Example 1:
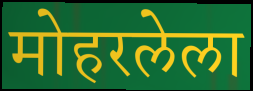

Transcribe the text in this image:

मोहरलेला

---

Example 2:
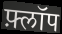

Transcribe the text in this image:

फ़्लॉप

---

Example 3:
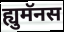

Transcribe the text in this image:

ह्युमॅनस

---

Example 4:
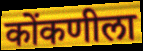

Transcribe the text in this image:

कोंकणीला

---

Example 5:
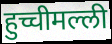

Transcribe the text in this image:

हुच्चीमल्ली